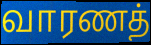
வாரணத்